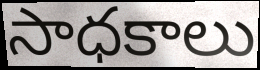
సాధకాలు